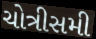
ચોત્રીસમી